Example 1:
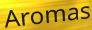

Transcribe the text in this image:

Aromas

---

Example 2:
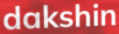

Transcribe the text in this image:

dakshin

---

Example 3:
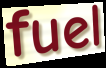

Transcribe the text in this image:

fuel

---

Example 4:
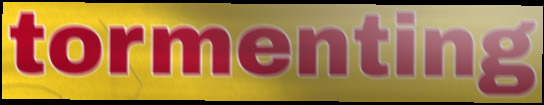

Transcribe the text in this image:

tormenting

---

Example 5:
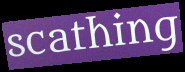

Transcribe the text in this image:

scathing